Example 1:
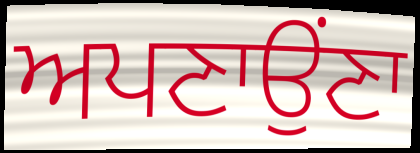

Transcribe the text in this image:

ਅਪਣਾਉਂਣਾ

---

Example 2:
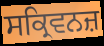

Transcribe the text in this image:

ਸਕ੍ਰਿਵਨਜ਼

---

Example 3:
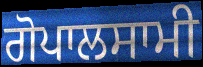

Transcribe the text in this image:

ਗੋਪਾਲਸਾਮੀ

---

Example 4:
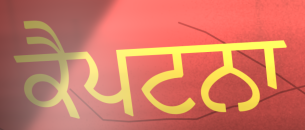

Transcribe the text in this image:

ਕੈਪਟਨਾ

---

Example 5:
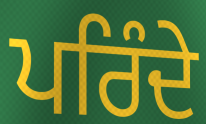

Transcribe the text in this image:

ਪਰਿੰਦੇ